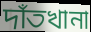
দাঁতখানা